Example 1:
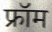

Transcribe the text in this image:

फ्रॉम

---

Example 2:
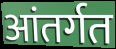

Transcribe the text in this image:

आंतर्गत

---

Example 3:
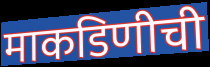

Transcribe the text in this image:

माकडिणीची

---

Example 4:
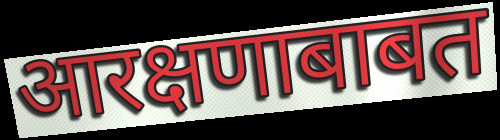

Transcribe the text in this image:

आरक्षणाबाबत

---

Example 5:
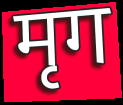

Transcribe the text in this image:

मृग